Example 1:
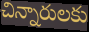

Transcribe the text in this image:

చిన్నారులకు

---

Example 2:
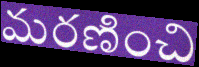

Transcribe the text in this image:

మరణించి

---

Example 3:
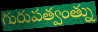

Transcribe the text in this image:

గురుపత్వంత్ను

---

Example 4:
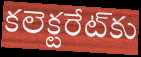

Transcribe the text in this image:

కలెక్టరేట్‌కు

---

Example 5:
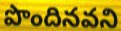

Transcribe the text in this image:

పొందినవని